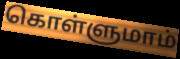
கொள்ளுமாம்